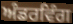
ਅੰਡਰਵਿੰਗ